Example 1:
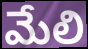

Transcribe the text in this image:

మేలి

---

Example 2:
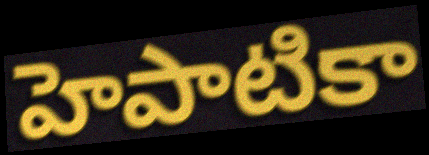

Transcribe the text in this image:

హెపాటికా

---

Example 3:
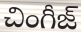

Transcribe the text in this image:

చింగీజ్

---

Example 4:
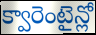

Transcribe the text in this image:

క్వారెంటైన్లో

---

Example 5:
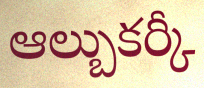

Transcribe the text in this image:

ఆల్బుకర్కీ